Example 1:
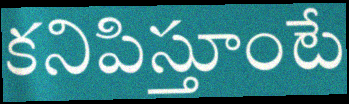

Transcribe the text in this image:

కనిపిస్తూంటే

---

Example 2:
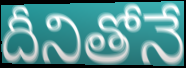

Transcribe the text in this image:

దీనితోనే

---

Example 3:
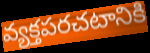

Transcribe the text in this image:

వ్యక్తపరచటానికి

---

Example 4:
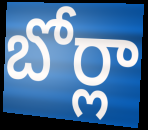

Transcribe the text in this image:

బోర్లా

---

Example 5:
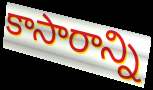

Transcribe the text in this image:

కాసారాన్ని